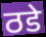
ठडे